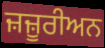
ਜ਼ਜ਼ੂਰੀਅਨ